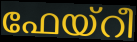
ഫേയ്റീ